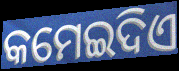
କମେଇଦିଏ